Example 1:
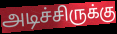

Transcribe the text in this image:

அடிச்சிருக்கு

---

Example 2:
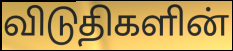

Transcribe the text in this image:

விடுதிகளின்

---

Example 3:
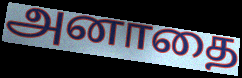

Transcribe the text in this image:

அனாதை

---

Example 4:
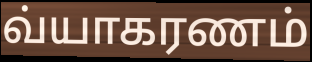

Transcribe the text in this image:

வ்யாகரணம்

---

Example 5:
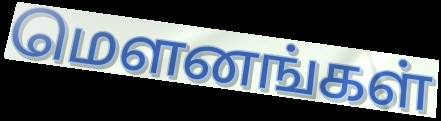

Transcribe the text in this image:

மௌனங்கள்